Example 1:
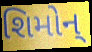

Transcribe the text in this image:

શિમોન્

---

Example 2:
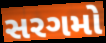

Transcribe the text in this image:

સરગમો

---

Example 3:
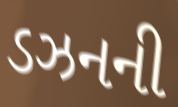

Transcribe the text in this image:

ડઝનની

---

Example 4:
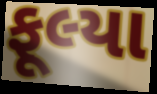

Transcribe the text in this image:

ફૂલ્યા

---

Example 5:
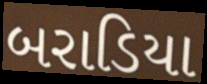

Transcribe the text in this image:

બરાડિયા